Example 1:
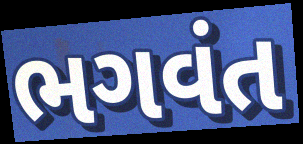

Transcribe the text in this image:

ભગવંત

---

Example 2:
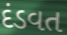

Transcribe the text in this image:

દંડવત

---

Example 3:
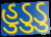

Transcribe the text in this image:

હુડુડુ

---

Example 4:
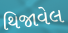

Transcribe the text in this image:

થિજાવેલ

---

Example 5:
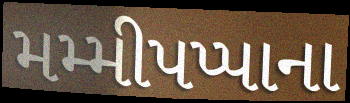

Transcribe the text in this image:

મમ્મીપપ્પાના